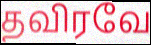
தவிரவே